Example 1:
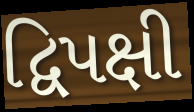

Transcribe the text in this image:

દ્વિપક્ષી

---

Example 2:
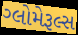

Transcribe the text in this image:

ગ્લોમેરૂલ્સ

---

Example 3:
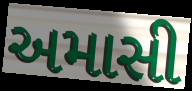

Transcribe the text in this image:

અમાસી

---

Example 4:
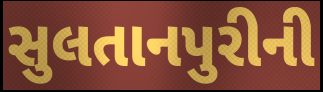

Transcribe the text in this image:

સુલતાનપુરીની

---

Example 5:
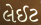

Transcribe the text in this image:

લેઈટ